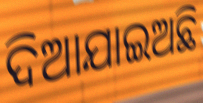
ଦିଆଯାଇଅଛି